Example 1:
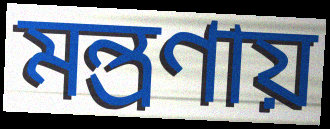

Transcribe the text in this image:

মন্ত্রণায়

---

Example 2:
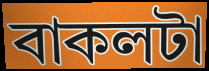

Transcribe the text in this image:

বাকলটা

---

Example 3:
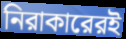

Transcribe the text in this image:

নিরাকারেরই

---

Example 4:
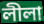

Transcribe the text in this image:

লীলা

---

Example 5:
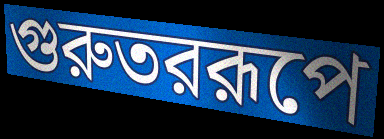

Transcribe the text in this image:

গুরুতররূপে